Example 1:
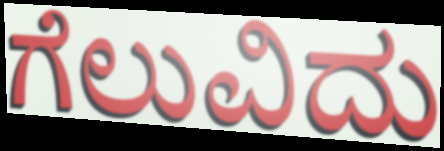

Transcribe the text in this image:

ಗೆಲುವಿದು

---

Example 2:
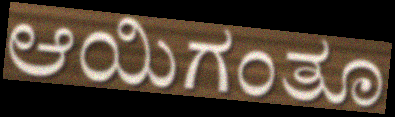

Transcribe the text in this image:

ಆಯಿಗಂತೂ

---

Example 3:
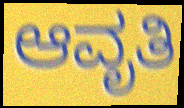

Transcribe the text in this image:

ಆವೃತಿ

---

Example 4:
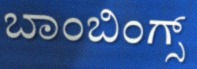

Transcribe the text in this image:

ಬಾಂಬಿಂಗ್ಸ್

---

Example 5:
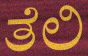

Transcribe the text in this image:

ತೆಲಿ